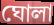
ঘোলা